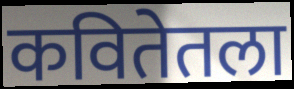
कवितेतला